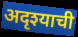
अदृश्याची